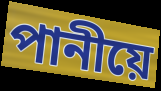
পানীয়ে